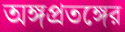
অঙ্গপ্রতঙ্গের